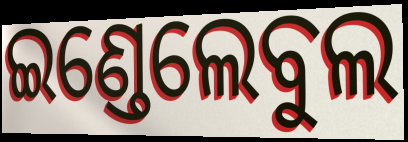
ଇଣ୍ଡେଲେବୁଲ